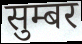
सुम्बर